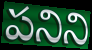
పనిని